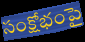
సంక్షోభంపై